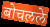
बोचलले